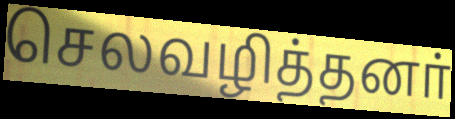
செலவழித்தனர்